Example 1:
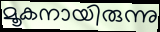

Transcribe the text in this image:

മൂകനായിരുന്നു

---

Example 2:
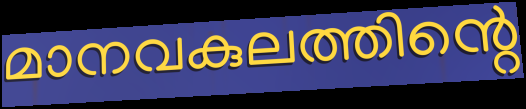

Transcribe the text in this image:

മാനവകുലത്തിന്റെ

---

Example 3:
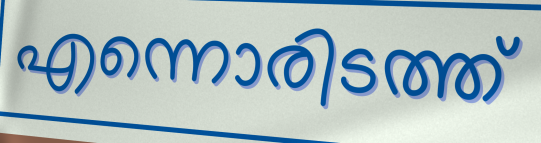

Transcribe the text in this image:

എന്നൊരിടത്ത്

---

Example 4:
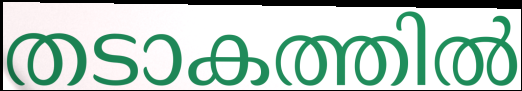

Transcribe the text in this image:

തടാകത്തിൽ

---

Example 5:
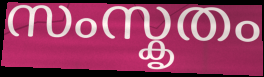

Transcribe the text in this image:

സംസ്കൃതം